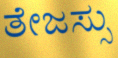
ತೇಜಸ್ಸು